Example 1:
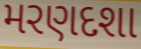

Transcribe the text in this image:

મરણદશા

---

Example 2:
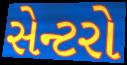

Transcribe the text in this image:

સેન્ટરો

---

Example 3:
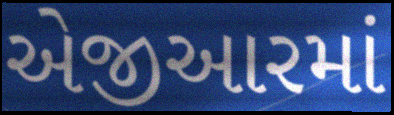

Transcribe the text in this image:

એજીઆરમાં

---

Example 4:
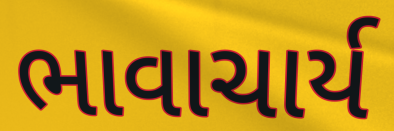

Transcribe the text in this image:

ભાવાચાર્ય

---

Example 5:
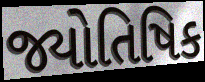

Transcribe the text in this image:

જ્યોતિષિક